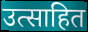
उत्साहित